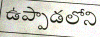
ఉప్పాడలోని